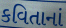
કવિતાનાં